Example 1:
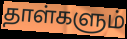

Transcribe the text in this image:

தாள்களும்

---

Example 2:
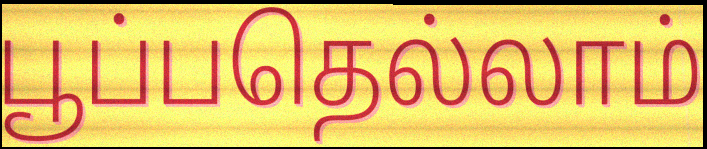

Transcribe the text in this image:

பூப்பதெல்லாம்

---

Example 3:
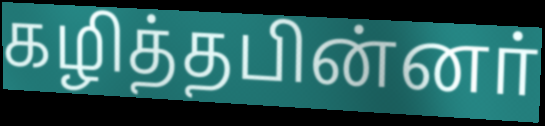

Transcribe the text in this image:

கழித்தபின்னர்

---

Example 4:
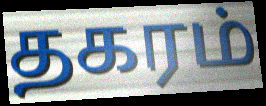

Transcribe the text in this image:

தகரம்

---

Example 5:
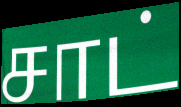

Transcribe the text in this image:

சாட்